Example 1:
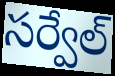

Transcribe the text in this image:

సర్వేల్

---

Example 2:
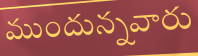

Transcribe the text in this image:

ముందున్నవారు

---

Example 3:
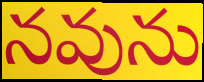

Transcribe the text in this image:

నవును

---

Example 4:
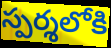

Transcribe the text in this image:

స్పర్శలోకి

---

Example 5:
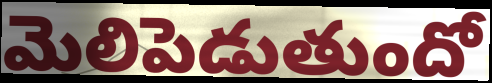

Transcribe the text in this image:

మెలిపెడుతుందో